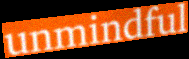
unmindful